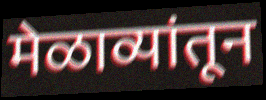
मेळाव्यांतून